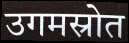
उगमस्रोत